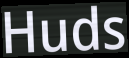
Huds